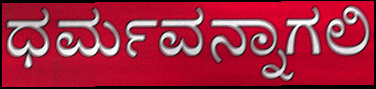
ಧರ್ಮವನ್ನಾಗಲಿ